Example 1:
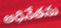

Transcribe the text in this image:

అధినేతను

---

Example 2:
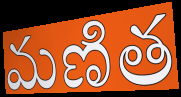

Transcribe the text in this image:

మణిత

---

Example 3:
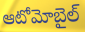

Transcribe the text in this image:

ఆటోమోబైల్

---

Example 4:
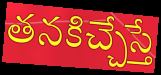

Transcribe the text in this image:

తనకిచ్చేస్తే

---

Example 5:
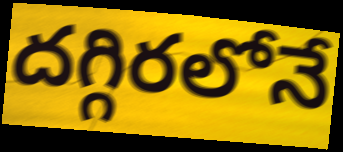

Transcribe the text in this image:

దగ్గిరలోనే